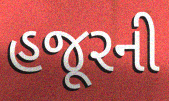
હજૂરની